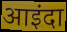
आइंदा